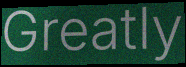
Greatly